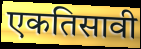
एकतिसावी